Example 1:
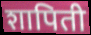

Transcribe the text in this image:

शापिती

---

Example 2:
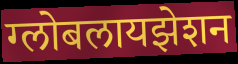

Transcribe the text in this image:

ग्लोबलायझेशन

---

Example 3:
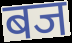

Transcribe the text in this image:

बज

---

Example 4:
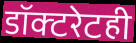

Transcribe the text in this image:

डॉक्‍टरेटही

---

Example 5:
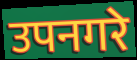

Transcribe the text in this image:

उपनगरे